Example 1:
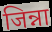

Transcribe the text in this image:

जिन्ना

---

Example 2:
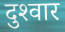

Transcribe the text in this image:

दुश्‍वार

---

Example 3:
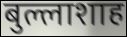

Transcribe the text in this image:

बुल्लाशाह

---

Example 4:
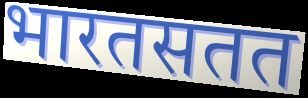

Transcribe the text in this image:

भारतसतत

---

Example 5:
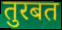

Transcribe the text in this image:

तुरबत